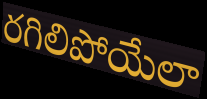
రగిలిపోయేలా